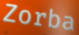
Zorba